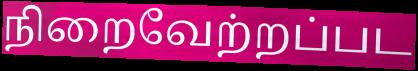
நிறைவேற்றப்பட